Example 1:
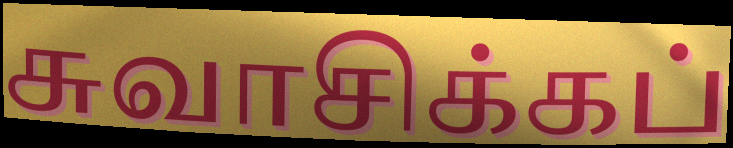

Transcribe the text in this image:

சுவாசிக்கப்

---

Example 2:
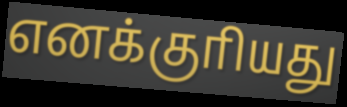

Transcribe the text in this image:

எனக்குரியது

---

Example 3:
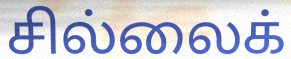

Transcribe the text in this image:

சில்லைக்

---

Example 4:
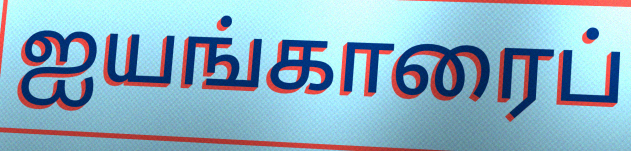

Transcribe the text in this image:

ஐயங்காரைப்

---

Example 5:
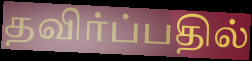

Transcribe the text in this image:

தவிர்ப்பதில்